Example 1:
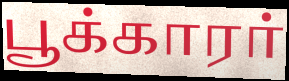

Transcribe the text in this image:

பூக்காரர்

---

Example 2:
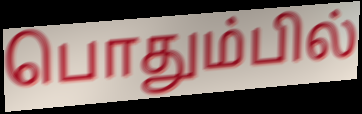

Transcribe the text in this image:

பொதும்பில்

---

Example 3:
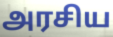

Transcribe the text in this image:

அரசிய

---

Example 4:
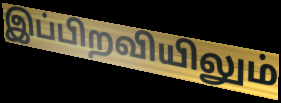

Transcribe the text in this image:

இப்பிறவியிலும்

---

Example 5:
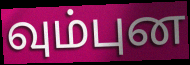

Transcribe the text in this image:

வும்புன